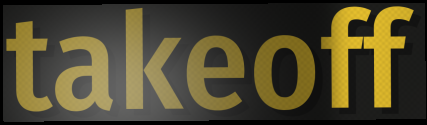
takeoff